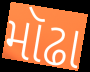
મૉઢા